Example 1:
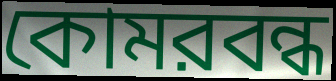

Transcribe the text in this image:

কোমরবন্ধ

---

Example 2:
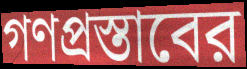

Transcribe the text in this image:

গণপ্রস্তাবের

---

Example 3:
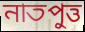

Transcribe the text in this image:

নাতপুত্ত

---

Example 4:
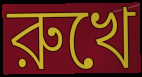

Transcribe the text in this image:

রুখে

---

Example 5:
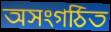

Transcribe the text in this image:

অসংগঠিত